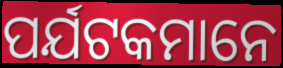
ପର୍ଯଟକମାନେ